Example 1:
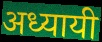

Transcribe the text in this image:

अध्यायी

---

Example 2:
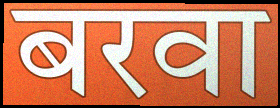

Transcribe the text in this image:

बरवा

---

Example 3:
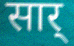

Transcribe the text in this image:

सार्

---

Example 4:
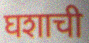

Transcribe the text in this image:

घशाची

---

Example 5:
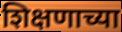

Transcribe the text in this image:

शिक्षणाच्या